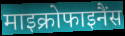
माइक्रोफाइनैंस